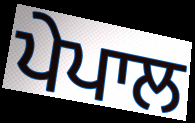
ਪੇਪਾਲ